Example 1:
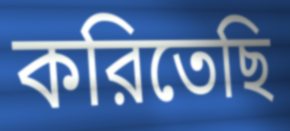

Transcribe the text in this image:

করিতেছি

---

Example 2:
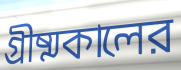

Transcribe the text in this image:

গ্রীষ্মকালের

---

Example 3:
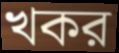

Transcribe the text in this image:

খকর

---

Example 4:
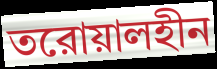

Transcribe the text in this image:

তরোয়ালহীন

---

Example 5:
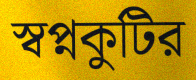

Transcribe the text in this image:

স্বপ্নকুটির